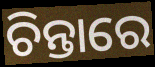
ଚିନ୍ତାରେ